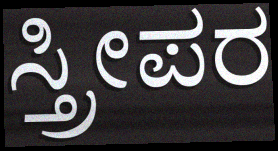
ಸ್ತ್ರೀಪರ